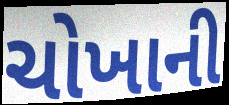
ચોખાની